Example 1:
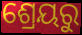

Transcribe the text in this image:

ଶ୍ରେୟରୁ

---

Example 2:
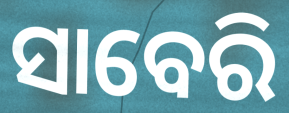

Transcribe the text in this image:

ସାବେରି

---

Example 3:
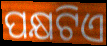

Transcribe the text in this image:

ପକ୍ଷଟିଏ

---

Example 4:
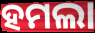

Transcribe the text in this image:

ହମଲା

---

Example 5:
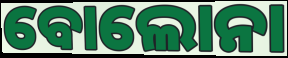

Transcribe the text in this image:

ବୋଲୋନା